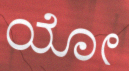
ಯೋ